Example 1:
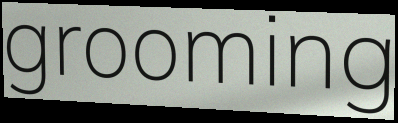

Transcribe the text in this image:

grooming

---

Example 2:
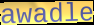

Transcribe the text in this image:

awadle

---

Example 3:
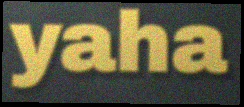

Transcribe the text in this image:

yaha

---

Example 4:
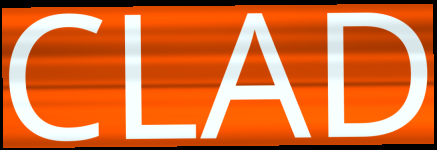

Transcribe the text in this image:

CLAD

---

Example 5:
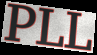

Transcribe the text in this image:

PLL